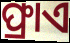
ଫ୍ରାଏ